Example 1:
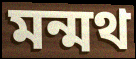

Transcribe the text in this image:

মন্মথ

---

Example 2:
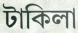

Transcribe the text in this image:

টাকিলা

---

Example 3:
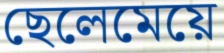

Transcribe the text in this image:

ছেলেমেয়ে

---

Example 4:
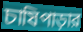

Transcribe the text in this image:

চাষিপাড়ার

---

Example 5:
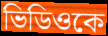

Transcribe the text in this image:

ভিডিওকে